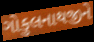
ગોકુલનાથજીને